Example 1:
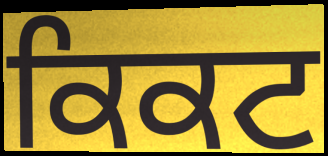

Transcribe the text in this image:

ਕਿਕਟ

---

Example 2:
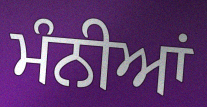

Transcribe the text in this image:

ਮੰਨੀਆਂ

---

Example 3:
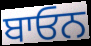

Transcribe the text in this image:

ਬਾਓਨ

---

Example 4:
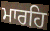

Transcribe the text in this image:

ਮਾਰਹਿ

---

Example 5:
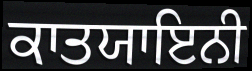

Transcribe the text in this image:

ਕਾਤਯਾਇਨੀ